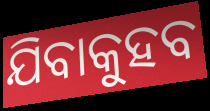
ଯିବାକୁହବ